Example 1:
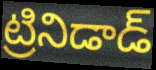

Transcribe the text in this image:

ట్రినిడాడ్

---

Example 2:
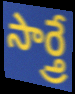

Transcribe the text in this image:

సార్త్రే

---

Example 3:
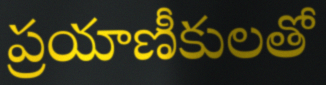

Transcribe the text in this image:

ప్రయాణీకులతో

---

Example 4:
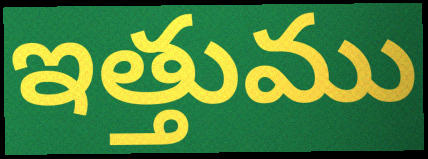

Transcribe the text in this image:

ఇత్తుము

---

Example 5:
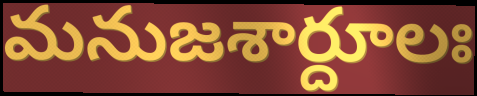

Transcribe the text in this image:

మనుజశార్దూలః